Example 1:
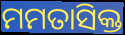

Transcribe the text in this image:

ମମତାସିକ୍ତ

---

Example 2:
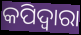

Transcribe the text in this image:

କପିଦ୍ୱାରା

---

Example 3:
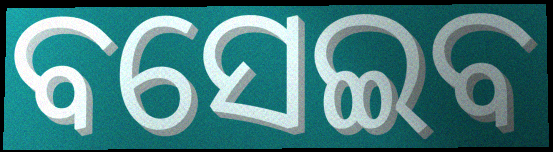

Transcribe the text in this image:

ବସେଇବ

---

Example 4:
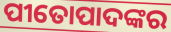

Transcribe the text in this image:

ପୀତୋପାଦଙ୍କର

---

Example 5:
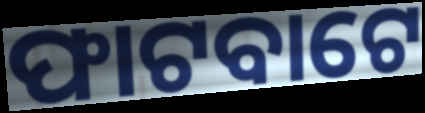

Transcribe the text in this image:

ଫାଟବାଟେ